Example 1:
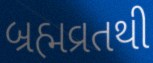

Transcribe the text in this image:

બ્રહ્મવ્રતથી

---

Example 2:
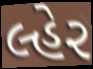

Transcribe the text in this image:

લ્હેર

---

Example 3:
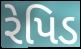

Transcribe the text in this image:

રેપિડ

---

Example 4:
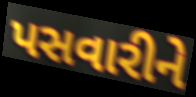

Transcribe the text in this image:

પસવારીને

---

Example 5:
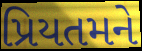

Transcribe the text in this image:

પ્રિયતમને